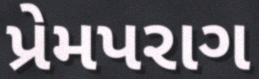
પ્રેમપરાગ